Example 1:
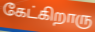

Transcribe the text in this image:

கேட்கிறாரு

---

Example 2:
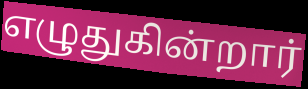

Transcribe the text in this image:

எழுதுகின்றார்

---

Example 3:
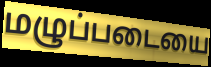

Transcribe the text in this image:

மழுப்படையை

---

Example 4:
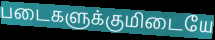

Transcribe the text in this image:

படைகளுக்குமிடையே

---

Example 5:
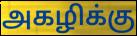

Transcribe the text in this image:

அகழிக்கு